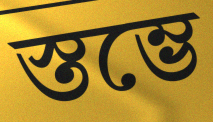
স্তম্ভে